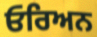
ਓਰਿਅਨ